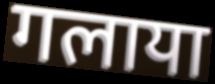
गलाया